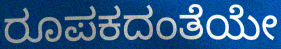
ರೂಪಕದಂತೆಯೇ